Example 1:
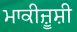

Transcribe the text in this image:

ਮਾਕੀਜ਼ੂਸ਼ੀ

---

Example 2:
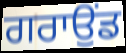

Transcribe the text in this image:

ਗਰਾਉਂਡ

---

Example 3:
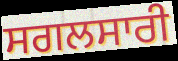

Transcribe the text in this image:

ਸਗਲਸਾਰੀ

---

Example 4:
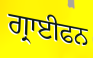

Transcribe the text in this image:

ਗ੍ਰਾਈਫਨ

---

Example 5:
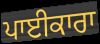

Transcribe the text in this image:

ਪਾਈਕਾਰਾ